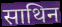
साथिन